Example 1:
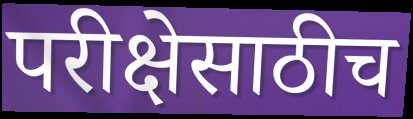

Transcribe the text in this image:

परीक्षेसाठीच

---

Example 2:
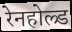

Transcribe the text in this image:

रेनहोल्ड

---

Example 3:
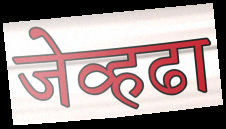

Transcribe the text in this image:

जेव्हढा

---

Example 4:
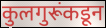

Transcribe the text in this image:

कुलगुरूंकडून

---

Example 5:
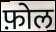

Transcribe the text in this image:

फ़ोल